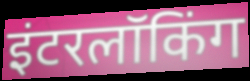
इंटरलॉकिंग